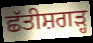
ਛੱਤੀਸ਼ਗੜ੍ਹ